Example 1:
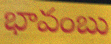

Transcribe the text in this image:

భావంబు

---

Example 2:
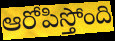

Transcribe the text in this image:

ఆరోపిస్తోంది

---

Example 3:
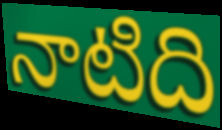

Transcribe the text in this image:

నాటిది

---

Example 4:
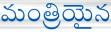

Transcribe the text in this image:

మంత్రియైన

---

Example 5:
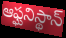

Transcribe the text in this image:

ఆఫ్ఘనిస్థాన్